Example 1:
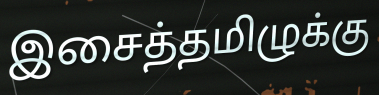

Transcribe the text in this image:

இசைத்தமிழுக்கு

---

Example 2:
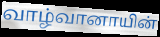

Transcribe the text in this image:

வாழ்வானாயின்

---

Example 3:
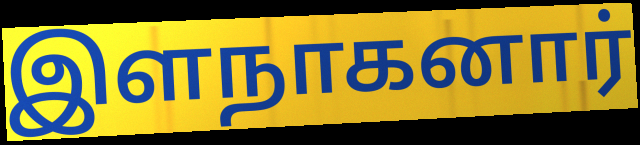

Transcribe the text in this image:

இளநாகனார்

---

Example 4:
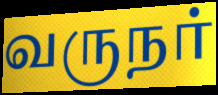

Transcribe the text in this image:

வருநர்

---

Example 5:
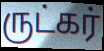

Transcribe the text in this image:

ருட்கர்